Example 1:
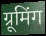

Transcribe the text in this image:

ग्रूमिंग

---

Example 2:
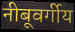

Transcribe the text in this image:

नीबूवर्गीय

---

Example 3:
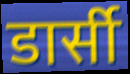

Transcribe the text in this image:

डार्सी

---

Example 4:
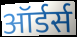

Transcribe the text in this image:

ऑर्डर्स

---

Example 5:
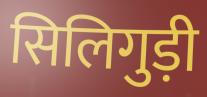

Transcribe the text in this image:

सिलिगुड़ी